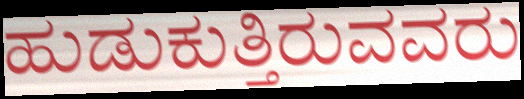
ಹುಡುಕುತ್ತಿರುವವರು